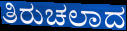
ತಿರುಚಲಾದ